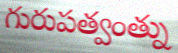
గురుపత్వంత్ను